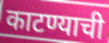
काटण्याची